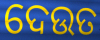
ଦେଉତ